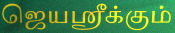
ஜெயஸ்ரீக்கும்